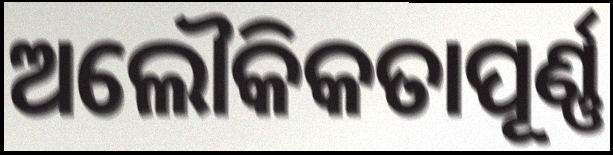
ଅଲୌକିକତାପୂର୍ଣ୍ଣ